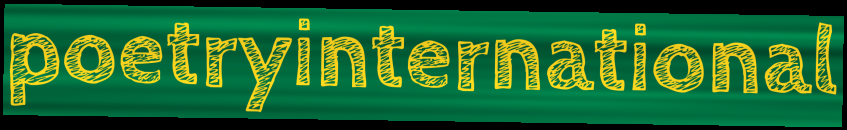
poetryinternational